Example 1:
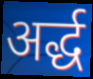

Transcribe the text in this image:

अर्द्ध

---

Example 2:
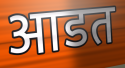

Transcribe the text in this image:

आडत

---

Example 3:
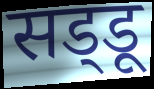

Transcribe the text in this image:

सड्‌डू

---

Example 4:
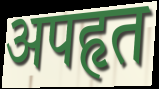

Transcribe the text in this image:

अपहृत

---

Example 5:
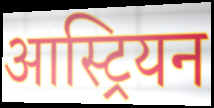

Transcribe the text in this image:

आस्ट्रियन